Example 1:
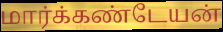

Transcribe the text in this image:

மார்க்கண்டேயன்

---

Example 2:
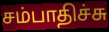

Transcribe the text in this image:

சம்பாதிச்சு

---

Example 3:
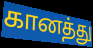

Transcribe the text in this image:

கானத்து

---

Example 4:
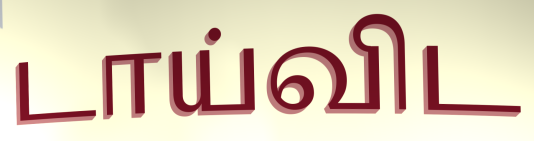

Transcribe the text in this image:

டாய்விட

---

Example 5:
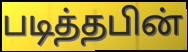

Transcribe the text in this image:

படித்தபின்